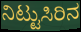
ನಿಟ್ಟುಸಿರಿನ